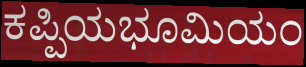
ಕಪ್ಪಿಯಭೂಮಿಯಂ